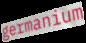
germanium